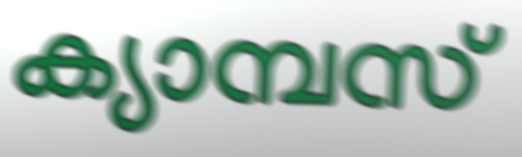
ക്യാമ്പസ്